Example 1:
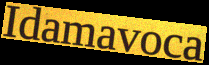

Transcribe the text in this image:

Idamavoca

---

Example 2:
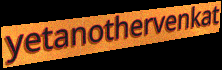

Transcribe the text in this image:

yetanothervenkat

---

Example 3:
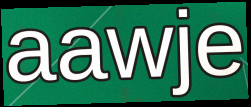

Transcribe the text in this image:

aawje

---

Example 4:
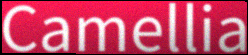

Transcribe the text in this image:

Camellia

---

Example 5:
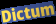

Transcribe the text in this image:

Dictum